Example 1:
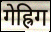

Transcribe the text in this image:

गेह्रिग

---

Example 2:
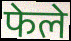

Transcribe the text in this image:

फेले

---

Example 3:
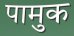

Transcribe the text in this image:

पामुक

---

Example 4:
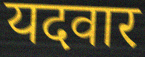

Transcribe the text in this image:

यदवार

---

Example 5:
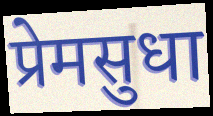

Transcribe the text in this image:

प्रेमसुधा